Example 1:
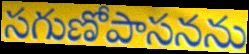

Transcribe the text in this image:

సగుణోపాసనను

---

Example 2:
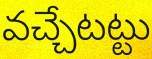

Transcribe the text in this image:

వచ్చేటట్టు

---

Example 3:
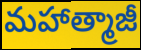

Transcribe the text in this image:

మహాత్మాజీ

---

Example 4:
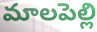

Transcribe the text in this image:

మాలపెల్లి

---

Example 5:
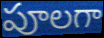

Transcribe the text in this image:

పూలగా